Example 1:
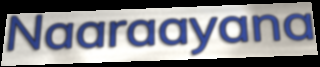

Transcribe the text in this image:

Naaraayana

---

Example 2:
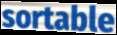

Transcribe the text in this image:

sortable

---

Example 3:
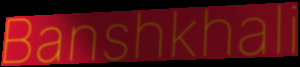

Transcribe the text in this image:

Banshkhali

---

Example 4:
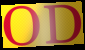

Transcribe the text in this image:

OD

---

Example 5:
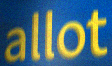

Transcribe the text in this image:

allot